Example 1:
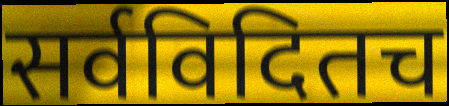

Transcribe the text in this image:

सर्वविदितच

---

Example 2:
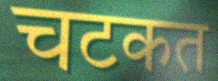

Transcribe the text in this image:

चटकत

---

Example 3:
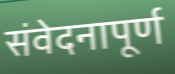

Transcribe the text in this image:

संवेदनापूर्ण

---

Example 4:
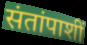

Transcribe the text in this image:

संतांपाशीं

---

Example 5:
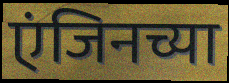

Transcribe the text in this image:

एंजिनच्या